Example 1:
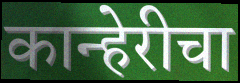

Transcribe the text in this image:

कान्हेरीचा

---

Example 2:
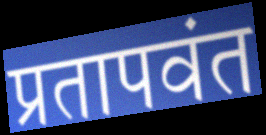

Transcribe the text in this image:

प्रतापवंत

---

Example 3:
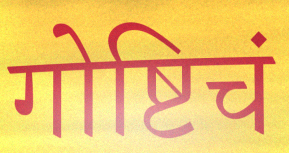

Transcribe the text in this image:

गोष्टिचं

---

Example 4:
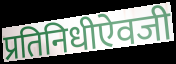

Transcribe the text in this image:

प्रतिनिधीऐवजी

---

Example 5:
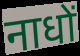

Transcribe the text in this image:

नाधों